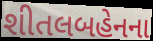
શીતલબહેનના